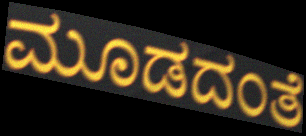
ಮೂಡದಂತೆ